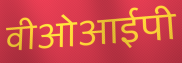
वीओआईपी